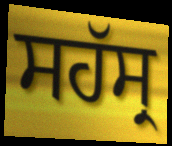
ਸਹੱਸ੍ਰ